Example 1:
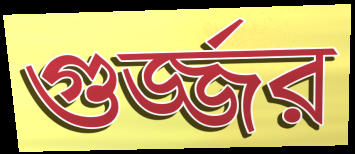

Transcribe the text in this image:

গুর্জ্জর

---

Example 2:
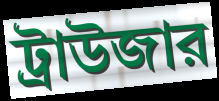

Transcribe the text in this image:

ট্রাউজার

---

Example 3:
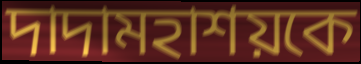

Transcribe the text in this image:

দাদামহাশয়কে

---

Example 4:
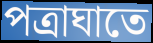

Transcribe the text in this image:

পত্রাঘাতে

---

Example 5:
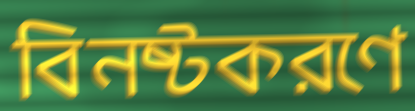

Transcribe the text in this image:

বিনষ্টকরণে